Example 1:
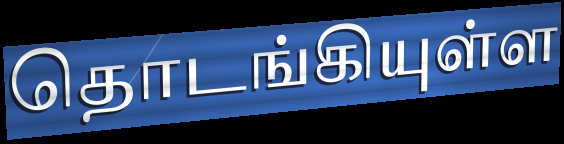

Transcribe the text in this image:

தொடங்கியுள்ள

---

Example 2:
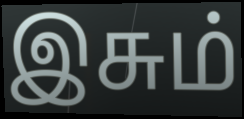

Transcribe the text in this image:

இசும்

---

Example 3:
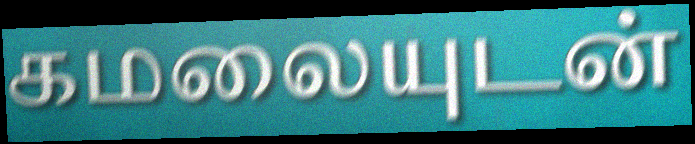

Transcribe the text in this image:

கமலையுடன்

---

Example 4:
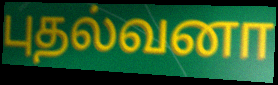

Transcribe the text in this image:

புதல்வனா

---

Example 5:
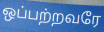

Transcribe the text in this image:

ஒப்பற்றவரே